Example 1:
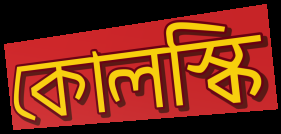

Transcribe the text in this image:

কোলস্কি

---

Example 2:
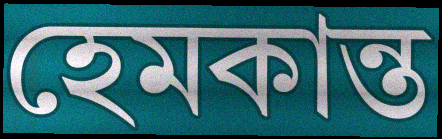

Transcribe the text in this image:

হেমকান্ত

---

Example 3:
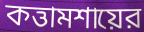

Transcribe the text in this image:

কত্তামশায়ের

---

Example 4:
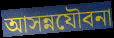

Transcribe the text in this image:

আসন্নযৌবনা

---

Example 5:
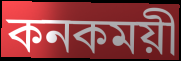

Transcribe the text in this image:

কনকময়ী